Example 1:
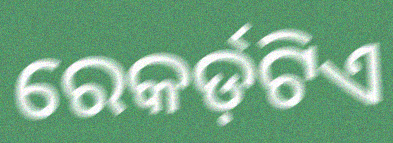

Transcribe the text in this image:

ରେକର୍ଡ଼ଟିଏ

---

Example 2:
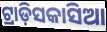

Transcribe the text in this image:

ଟ୍ରାଡ଼ିସକାସିଆ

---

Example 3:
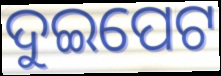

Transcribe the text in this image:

ଦୁଇପେଟ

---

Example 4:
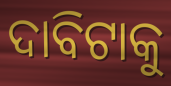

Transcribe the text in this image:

ଦାବିଟାକୁ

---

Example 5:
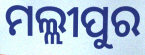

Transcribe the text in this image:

ମଲ୍ଲୀପୁର